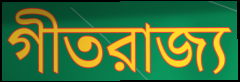
গীতরাজ্য